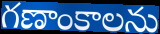
గణాంకాలను